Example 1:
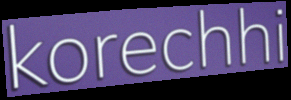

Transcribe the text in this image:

korechhi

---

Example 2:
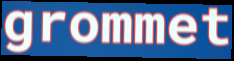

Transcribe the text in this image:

grommet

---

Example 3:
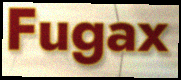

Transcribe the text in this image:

Fugax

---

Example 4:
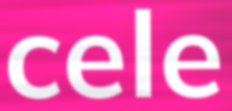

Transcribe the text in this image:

cele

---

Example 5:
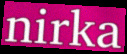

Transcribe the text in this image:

nirka